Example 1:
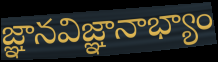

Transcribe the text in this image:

జ్ఞానవిజ్ఞానాభ్యాం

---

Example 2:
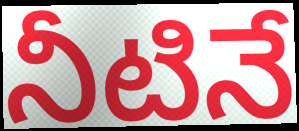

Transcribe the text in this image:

నీటినే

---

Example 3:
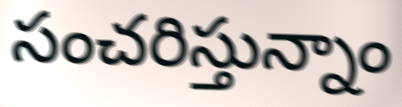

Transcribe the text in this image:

సంచరిస్తున్నాం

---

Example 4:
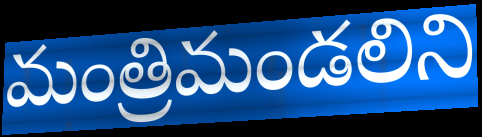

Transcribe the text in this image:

మంత్రిమండలిని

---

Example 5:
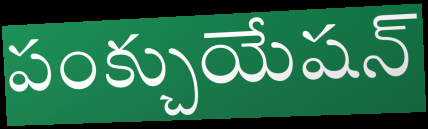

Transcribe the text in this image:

పంక్చుయేషన్